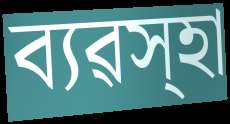
ব্যৱস্হা